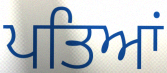
ਪਤਿਆਂ